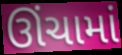
ઊંચામાં